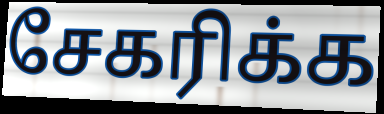
சேகரிக்க